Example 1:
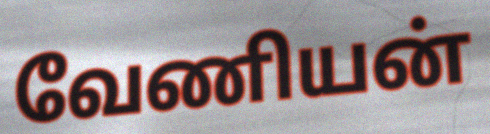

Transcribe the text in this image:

வேணியன்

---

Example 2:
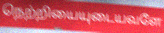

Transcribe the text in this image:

நெற்றியையுடையவளே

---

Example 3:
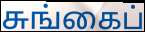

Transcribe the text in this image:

சுங்கைப்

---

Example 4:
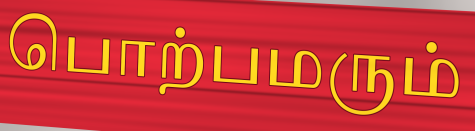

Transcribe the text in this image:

பொற்பமரும்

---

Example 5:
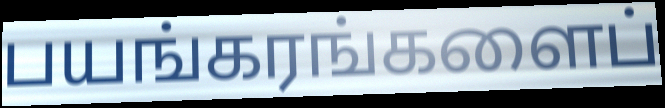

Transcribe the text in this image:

பயங்கரங்களைப்